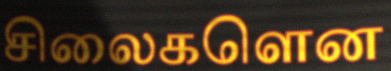
சிலைகளென